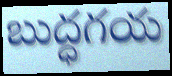
బుద్ధగయ